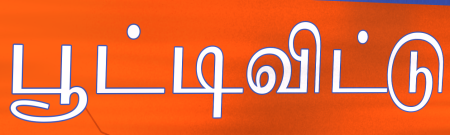
பூட்டிவிட்டு